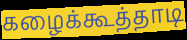
கழைக்கூத்தாடி